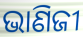
ଭାଣିଜୀ